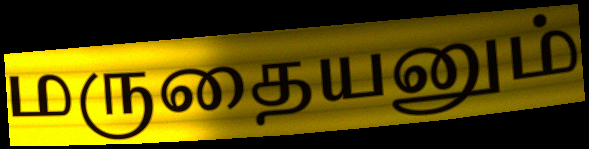
மருதையனும்